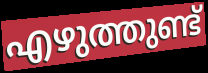
എഴുത്തുണ്ട്